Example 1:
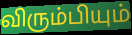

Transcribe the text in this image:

விரும்பியும்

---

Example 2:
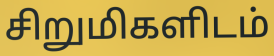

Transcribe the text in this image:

சிறுமிகளிடம்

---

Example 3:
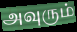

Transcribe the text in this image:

அவுரும்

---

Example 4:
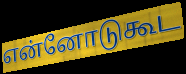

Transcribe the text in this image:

என்னோடுகூட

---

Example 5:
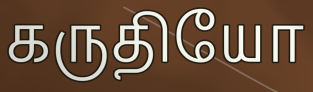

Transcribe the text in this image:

கருதியோ